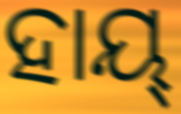
ହାୟ୍